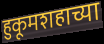
हुकूमशहाच्या